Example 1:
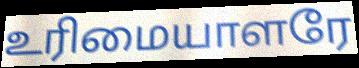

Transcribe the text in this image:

உரிமையாளரே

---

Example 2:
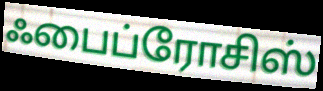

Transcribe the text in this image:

ஃபைப்ரோசிஸ்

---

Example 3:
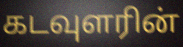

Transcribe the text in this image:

கடவுளரின்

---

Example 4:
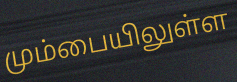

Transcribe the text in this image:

மும்பையிலுள்ள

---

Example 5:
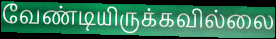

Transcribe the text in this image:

வேண்டியிருக்கவில்லை